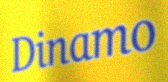
Dinamo